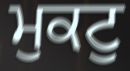
ਮੁਕਟੁ